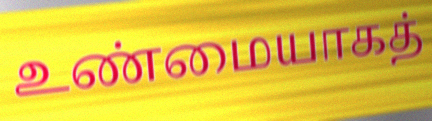
உண்மையாகத்